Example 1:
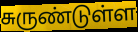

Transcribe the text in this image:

சுருண்டுள்ள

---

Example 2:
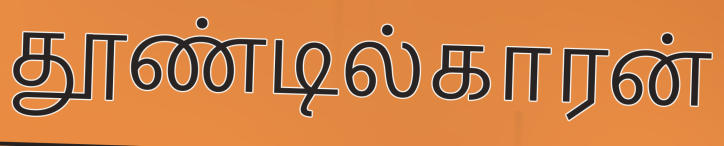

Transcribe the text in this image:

தூண்டில்காரன்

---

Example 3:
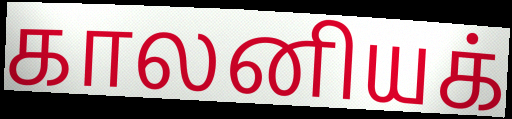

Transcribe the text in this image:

காலனியக்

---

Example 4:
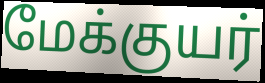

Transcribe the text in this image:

மேக்குயர்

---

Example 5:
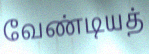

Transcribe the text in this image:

வேண்டியத்